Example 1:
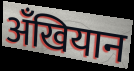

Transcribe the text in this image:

अँखियान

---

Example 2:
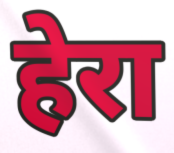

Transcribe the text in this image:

हेरा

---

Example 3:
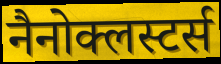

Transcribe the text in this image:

नैनोक्लस्टर्स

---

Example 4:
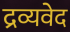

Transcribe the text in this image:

द्रव्यवेद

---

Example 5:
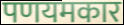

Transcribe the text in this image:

पणयमकार